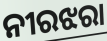
ନୀରଝରା